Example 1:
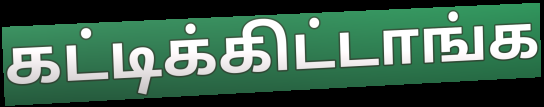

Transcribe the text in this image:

கட்டிக்கிட்டாங்க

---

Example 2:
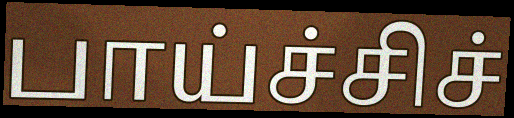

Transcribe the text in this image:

பாய்ச்சிச்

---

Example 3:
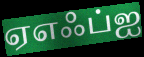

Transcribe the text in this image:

ஏஎஃப்ஐ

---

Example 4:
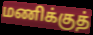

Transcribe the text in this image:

மணிக்குத்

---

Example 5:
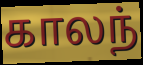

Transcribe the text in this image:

காலந்